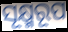
ସୂକ୍ଷ୍ମରୂପ